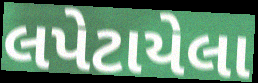
લપેટાયેલા